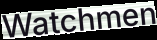
Watchmen